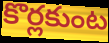
కొర్లకుంట